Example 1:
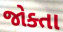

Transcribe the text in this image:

જોક્તા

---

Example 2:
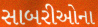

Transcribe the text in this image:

સાબરીઓના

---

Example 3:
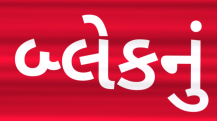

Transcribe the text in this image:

બ્લેકનું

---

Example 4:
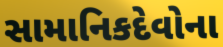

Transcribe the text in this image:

સામાનિકદેવોના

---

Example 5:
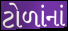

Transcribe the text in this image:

ટોળાંનાં